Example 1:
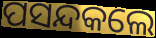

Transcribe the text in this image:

ପସନ୍ଦକଲେ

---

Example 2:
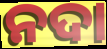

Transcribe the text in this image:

ନଦା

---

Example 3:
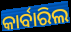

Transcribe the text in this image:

କାର୍ବାରିଲ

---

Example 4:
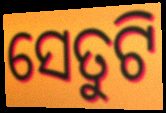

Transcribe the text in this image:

ସେତୁଟି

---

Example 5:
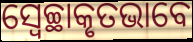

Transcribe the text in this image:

ସ୍ୱେଚ୍ଛାକୃତଭାବେ